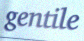
gentile